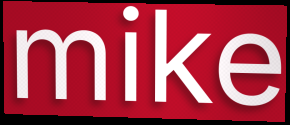
mike